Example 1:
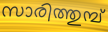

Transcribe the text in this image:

സാരിത്തുമ്പ്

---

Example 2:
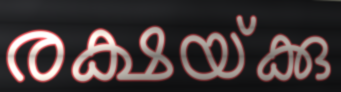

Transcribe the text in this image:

രക്ഷയ്‌ക്കു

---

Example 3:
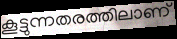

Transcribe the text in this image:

കൂട്ടുന്നതരത്തിലാണ്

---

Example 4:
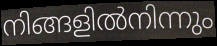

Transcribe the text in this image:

നിങ്ങളിൽനിന്നും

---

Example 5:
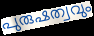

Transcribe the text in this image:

പുരുഷത്വവും